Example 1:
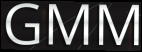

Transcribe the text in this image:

GMM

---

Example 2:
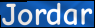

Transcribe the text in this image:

Jordar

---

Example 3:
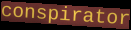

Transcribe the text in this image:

conspirator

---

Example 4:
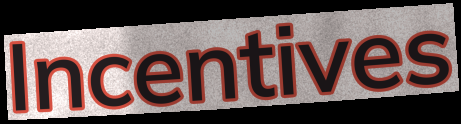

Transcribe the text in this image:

Incentives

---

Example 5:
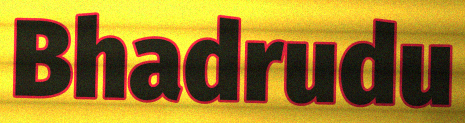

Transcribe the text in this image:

Bhadrudu